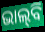
ଭାଲ୍‌ବି